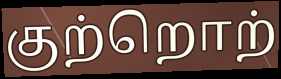
குற்றொற்